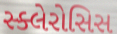
સ્ક્લેરોસિસ